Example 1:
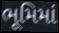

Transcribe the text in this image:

ભૂમિમાં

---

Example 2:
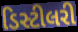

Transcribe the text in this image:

ડિસ્ટીલરી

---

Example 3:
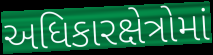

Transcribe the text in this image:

અધિકારક્ષેત્રોમાં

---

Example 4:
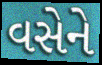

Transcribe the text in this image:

વસેને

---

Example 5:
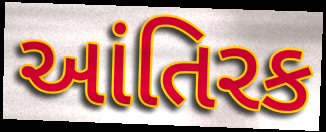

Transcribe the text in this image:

આંતિરક